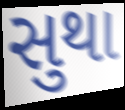
સુથા